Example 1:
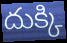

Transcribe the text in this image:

దుక్కి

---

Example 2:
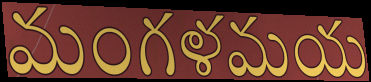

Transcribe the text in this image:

మంగళమయ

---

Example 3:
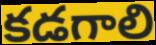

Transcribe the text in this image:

కడగాలి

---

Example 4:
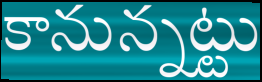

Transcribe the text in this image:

కానున్నట్టు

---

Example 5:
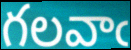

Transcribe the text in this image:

గలవాఁ